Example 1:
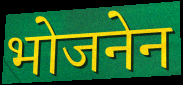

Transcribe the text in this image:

भोजनेन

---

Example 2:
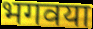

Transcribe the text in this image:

भगवया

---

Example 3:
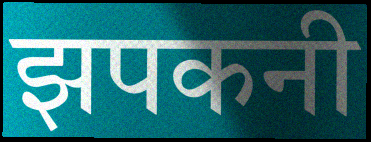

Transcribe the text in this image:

झपकनी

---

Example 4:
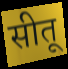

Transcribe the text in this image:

सीतू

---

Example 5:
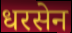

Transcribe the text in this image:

धरसेन